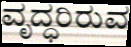
ವೃದ್ಧರಿರುವ